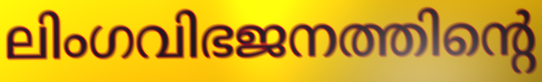
ലിംഗവിഭജനത്തിന്റെ